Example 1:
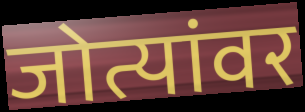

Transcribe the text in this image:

जोत्यांवर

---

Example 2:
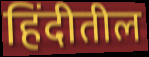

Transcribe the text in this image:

हिंदीतील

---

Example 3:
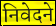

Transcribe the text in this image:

निवेदने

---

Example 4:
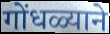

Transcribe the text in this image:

गोंधळ्याने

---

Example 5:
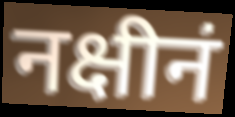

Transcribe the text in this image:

नक्षीनं